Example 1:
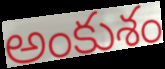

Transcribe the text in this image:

అంకుశం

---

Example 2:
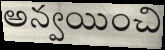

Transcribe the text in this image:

అన్వయించి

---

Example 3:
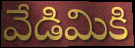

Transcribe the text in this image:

వేడిమికి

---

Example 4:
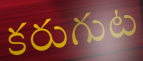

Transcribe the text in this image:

కరుగుట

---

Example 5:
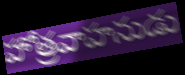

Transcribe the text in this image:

హోత్రవాహనుడు